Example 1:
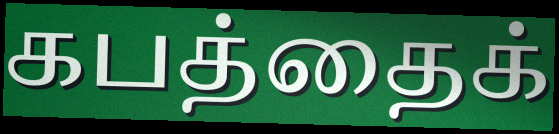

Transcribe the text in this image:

கபத்தைக்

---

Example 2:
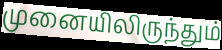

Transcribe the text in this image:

முனையிலிருந்தும்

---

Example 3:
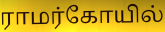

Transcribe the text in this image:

ராமர்கோயில்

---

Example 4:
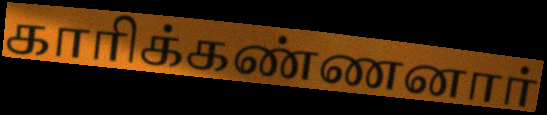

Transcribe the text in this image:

காரிக்கண்ணனார்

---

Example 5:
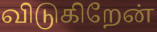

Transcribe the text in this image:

விடுகிறேன்